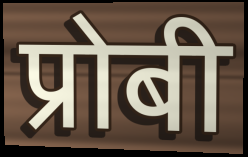
प्रोबी